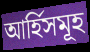
আৰ্হিসমূহ